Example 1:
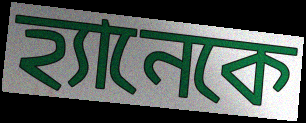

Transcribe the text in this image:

হ্যানেকে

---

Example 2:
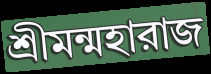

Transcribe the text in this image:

শ্রীমন্মহারাজ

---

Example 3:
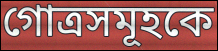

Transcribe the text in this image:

গোত্রসমূহকে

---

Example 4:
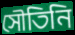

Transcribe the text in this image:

সৌতিনি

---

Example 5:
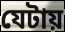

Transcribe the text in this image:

যেটায়